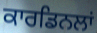
ਕਾਰਡਿਨਲਾਂ